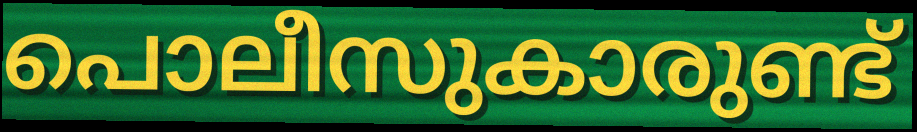
പൊലീസുകാരുണ്ട്